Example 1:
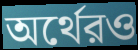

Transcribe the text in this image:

অর্থেরও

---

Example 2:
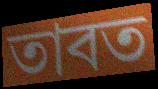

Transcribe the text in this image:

তাবত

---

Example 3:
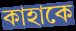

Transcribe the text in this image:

কাহাকে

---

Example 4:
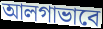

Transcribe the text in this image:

আলগাভাবে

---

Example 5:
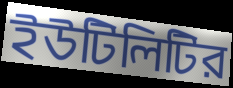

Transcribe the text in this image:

ইউটিলিটির